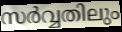
സർവ്വതിലും